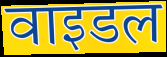
वाइडल